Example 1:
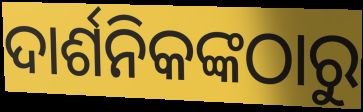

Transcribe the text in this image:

ଦାର୍ଶନିକଙ୍କଠାରୁ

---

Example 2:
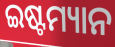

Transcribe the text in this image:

ଇଷ୍ଟମ୍ୟାନ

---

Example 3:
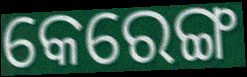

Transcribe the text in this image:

କେରେଙ୍ଗ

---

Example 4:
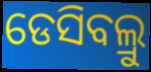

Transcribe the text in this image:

ଡେସିବଲ୍ରୁ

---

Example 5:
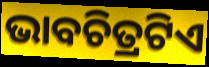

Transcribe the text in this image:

ଭାବଚିତ୍ରଟିଏ